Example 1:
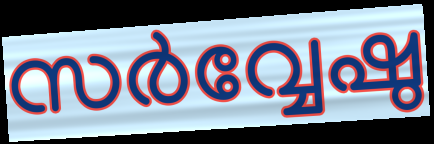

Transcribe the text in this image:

സർവ്വേഷു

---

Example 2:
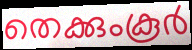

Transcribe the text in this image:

തെക്കുംകൂർ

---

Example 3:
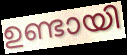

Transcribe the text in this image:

ഉണ്ടായി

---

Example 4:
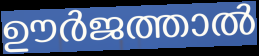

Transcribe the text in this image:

ഊർജത്താൽ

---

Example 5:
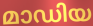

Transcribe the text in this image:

മാഡിയ